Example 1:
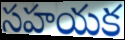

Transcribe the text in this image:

సహయక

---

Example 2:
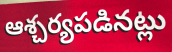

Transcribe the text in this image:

ఆశ్చర్యపడినట్లు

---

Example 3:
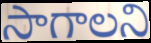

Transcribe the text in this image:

సాగాలని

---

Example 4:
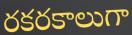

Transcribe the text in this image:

రకరకాలుగా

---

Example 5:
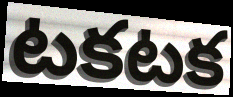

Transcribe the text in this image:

టకటక